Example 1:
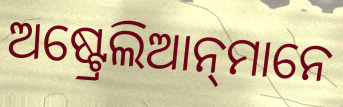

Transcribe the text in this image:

ଅଷ୍ଟ୍ରେଲିଆନ୍‌ମାନେ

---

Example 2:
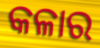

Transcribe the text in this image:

କଳାର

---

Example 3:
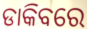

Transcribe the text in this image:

ଡାକିବରେ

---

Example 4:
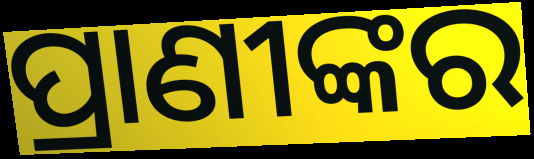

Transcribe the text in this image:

ପ୍ରାଣୀଙ୍କର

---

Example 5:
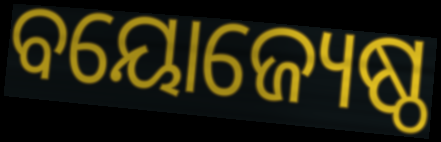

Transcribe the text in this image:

ବୟୋଜ୍ୟେଷ୍ଠ